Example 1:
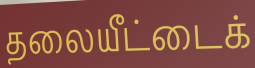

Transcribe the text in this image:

தலையீட்டைக்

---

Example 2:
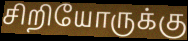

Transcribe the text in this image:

சிறியோருக்கு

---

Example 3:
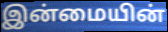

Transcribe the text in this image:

இன்மையின்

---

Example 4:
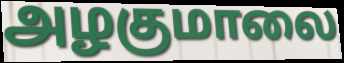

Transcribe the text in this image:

அழகுமாலை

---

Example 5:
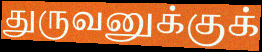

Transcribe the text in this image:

துருவனுக்குக்